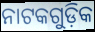
ନାଟକଗୁଡ଼ିକ